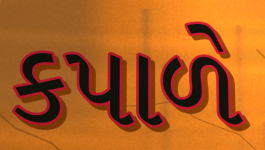
કપાળે